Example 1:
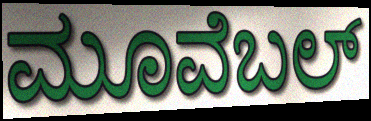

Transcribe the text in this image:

ಮೂವೆಬಲ್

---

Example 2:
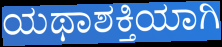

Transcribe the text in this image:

ಯಥಾಶಕ್ತಿಯಾಗಿ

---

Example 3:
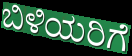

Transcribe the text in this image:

ಬಿಳಿಯರಿಗೆ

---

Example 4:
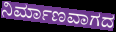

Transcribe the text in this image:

ನಿರ್ಮಾಣವಾಗದ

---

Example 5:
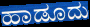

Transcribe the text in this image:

ಹಾಡೂದು